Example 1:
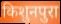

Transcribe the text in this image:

किशुनपुरा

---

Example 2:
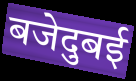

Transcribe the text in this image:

बजेदुबई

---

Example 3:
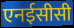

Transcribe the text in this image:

एनईसीसी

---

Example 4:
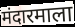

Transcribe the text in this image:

मंदारमाला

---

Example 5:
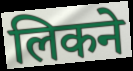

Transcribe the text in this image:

लिकने